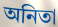
অনিতা